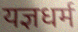
यज्ञधर्म